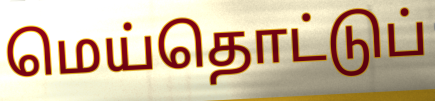
மெய்தொட்டுப்